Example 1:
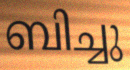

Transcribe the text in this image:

ബിച്ചു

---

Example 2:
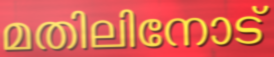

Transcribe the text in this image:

മതിലിനോട്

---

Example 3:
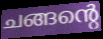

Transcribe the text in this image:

ചങ്ങന്റെ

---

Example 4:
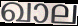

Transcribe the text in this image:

ഖാല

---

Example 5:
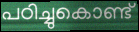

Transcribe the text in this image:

പഠിച്ചുകൊണ്ട്